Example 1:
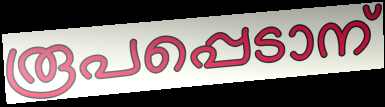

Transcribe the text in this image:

രൂപപ്പെടാന്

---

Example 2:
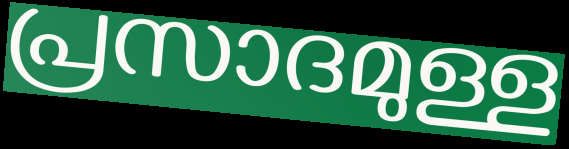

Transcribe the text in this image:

പ്രസാദമുള്ള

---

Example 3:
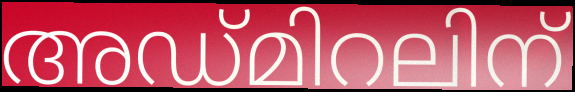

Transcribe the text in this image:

അഡ്മിറലിന്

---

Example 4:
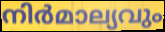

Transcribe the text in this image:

നിർമാല്യവും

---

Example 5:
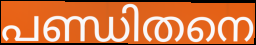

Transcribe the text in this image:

പണ്ഡിതനെ